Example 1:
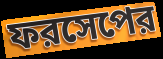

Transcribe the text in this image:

ফরসেপের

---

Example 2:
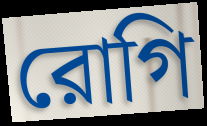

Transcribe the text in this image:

রোগি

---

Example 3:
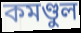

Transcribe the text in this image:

কমণ্ডুল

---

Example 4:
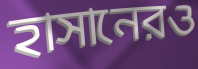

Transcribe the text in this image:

হাসানেরও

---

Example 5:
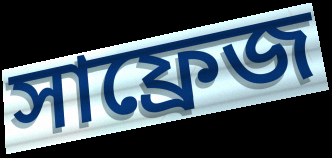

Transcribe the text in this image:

সাফ্রেজ